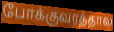
போக்குவரத்தால்